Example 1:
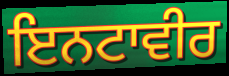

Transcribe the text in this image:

ਇਨਟਾਵੀਰ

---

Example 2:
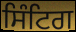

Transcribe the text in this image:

ਸਿੰਟਿਗ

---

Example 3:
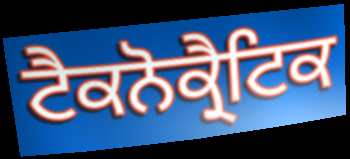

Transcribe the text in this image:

ਟੈਕਨੋਕ੍ਰੈਟਿਕ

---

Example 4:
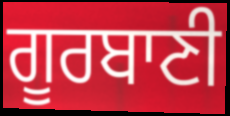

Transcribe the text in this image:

ਗੂਰਬਾਣੀ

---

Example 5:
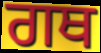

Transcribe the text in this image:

ਗਥ